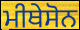
ਮੀਥੇਸੋਨ